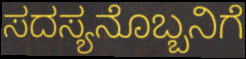
ಸದಸ್ಯನೊಬ್ಬನಿಗೆ